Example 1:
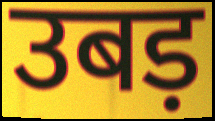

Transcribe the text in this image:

उबड़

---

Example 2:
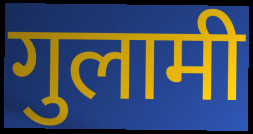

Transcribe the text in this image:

गुलामी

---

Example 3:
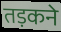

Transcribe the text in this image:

तड़कने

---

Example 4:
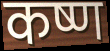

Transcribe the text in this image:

कष्ण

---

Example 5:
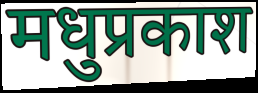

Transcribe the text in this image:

मधुप्रकाश